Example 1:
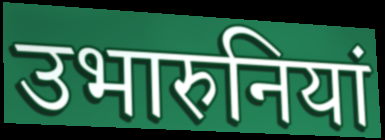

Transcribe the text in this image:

उभारुनियां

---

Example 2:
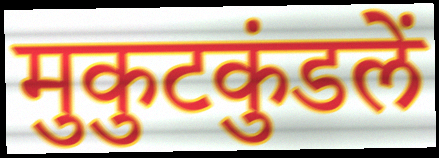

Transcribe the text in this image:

मुकुटकुंडलें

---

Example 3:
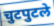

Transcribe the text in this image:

चुटपुटले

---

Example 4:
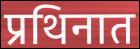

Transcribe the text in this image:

प्रथिनात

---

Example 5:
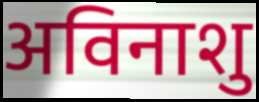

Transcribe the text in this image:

अविनाशु